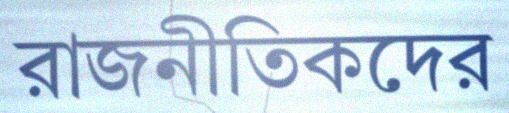
রাজনীতিকদের